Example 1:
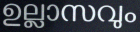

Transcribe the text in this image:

ഉല്ലാസവും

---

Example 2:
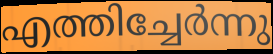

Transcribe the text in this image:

എത്തിച്ചേർന്നു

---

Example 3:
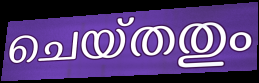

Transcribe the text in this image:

ചെയ്‌തതും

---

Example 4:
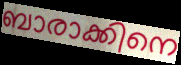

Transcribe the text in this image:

ബാരാക്കിനെ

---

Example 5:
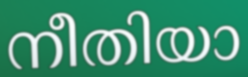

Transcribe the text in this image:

നീതിയാ